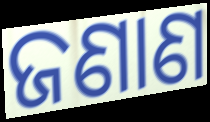
ଜଣାଣ